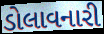
ડોલાવનારી